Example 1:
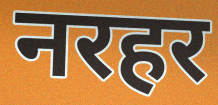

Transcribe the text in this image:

नरहर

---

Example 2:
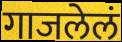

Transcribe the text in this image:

गाजलेलं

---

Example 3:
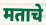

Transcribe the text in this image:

मताचे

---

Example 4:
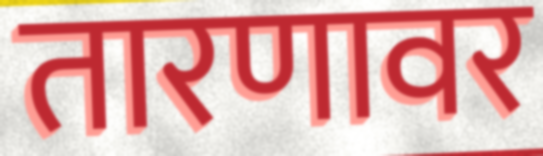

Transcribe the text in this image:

तारणावर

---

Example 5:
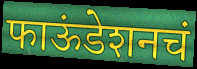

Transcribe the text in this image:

फाऊंडेशनचं